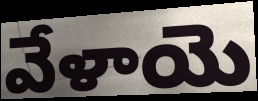
వేళాయె